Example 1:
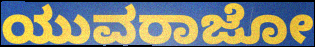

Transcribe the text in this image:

ಯುವರಾಜೋ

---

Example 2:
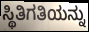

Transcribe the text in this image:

ಸ್ಥಿತಿಗತಿಯನ್ನು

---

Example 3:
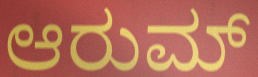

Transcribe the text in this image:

ಆರುಮ್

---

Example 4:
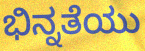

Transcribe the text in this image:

ಭಿನ್ನತೆಯು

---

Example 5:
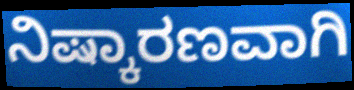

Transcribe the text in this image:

ನಿಷ್ಕಾರಣವಾಗಿ